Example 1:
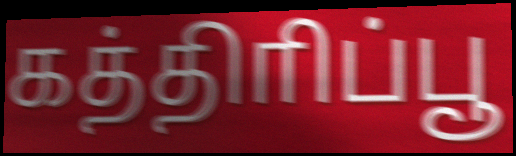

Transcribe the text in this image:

கத்திரிப்பூ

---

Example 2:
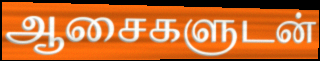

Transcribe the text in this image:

ஆசைகளுடன்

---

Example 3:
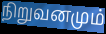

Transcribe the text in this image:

நிறுவனமும்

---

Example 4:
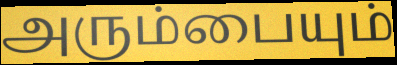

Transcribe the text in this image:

அரும்பையும்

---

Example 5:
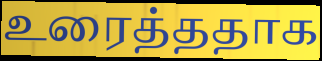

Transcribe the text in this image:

உரைத்ததாக